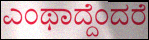
ಎಂಥಾದ್ದೆಂದರೆ